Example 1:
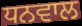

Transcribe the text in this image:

ਧਨਵਾਲ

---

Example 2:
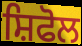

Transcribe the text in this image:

ਸ਼ਿਫੋਲ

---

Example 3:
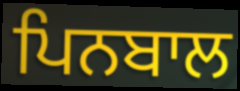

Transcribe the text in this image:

ਪਿਨਬਾਲ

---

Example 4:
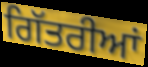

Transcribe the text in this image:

ਗਿੱਤਰੀਆਂ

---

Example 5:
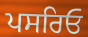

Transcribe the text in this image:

ਪਸਰਿਓ